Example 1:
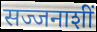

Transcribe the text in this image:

सज्जनाशीं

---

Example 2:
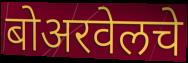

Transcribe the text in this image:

बोअरवेलचे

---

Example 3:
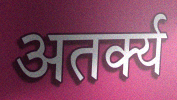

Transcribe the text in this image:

अतर्क्‍य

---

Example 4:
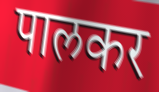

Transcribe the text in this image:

पालकर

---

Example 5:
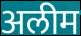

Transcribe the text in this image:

अलीम